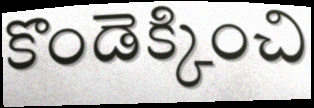
కొండెక్కించి